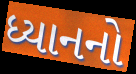
ધ્યાનનો